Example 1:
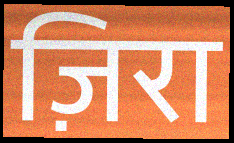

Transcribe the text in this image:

ज़िरा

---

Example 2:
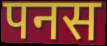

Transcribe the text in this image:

पनस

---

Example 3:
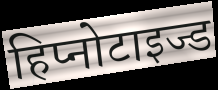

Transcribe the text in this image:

हिप्नोटाइज्ड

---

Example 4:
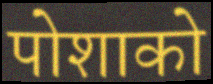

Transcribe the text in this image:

पोशाको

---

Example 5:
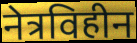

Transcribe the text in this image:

नेत्रविहीन